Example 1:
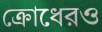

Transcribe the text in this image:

ক্রোধেরও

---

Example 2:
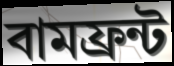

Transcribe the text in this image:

বামফ্রন্ট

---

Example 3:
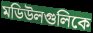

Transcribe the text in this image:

মডিউলগুলিকে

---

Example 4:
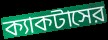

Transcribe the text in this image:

ক্যাকটাসের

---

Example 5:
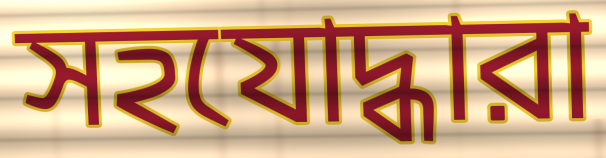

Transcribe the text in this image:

সহযোদ্ধারা